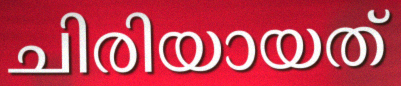
ചിരിയായത്